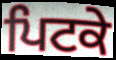
ਪਿਟਕੇ